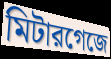
মিটারগেজে